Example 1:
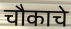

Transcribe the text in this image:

चौकाचे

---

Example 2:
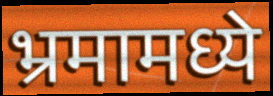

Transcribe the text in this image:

भ्रमामध्ये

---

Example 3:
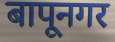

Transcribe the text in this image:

बापूनगर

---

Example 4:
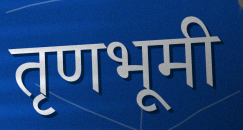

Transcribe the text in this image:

तृणभूमी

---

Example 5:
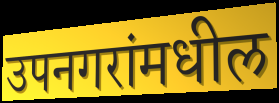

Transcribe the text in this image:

उपनगरांमधील